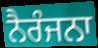
ਨੈਰੰਜਨਾ